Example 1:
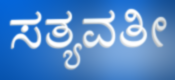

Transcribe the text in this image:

ಸತ್ಯವತೀ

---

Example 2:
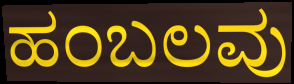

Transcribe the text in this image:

ಹಂಬಲವು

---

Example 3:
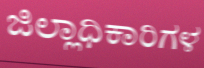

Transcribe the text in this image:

ಜಿಲ್ಲಾಧಿಕಾರಿಗಳ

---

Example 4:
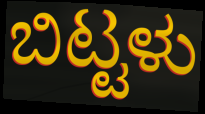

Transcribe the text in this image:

ಬಿಟ್ಟಳು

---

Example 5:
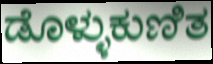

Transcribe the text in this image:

ಡೊಳ್ಳುಕುಣಿತ